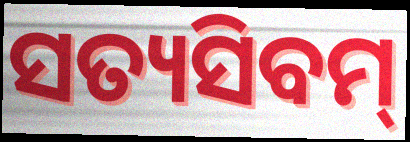
ସତ୍ୟସିବମ୍